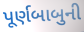
પૂર્ણબાબુની